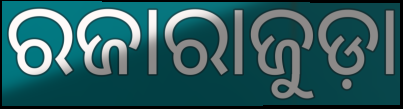
ରଜାରାଜୁଡ଼ା